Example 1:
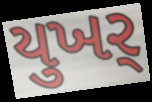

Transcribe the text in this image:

યુખર્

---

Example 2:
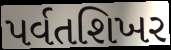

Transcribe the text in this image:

પર્વતશિખર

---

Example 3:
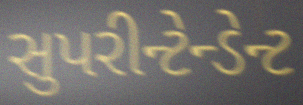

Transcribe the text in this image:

સુપરીન્ટેન્ડેન્ટ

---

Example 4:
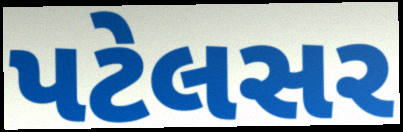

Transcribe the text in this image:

પટેલસર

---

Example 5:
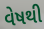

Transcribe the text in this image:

વેષથી